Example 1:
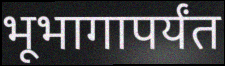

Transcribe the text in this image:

भूभागापर्यंत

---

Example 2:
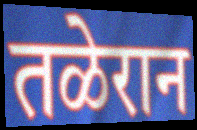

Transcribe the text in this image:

तळेरान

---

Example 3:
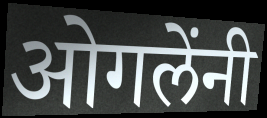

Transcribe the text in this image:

ओगलेंनी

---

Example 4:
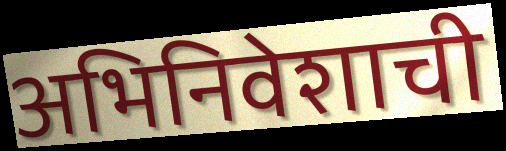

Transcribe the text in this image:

अभिनिवेशाची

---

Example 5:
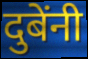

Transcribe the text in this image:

दुबेंनी